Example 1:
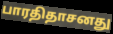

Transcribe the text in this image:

பாரதிதாசனது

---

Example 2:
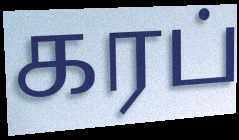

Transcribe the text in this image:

கரப்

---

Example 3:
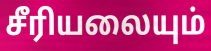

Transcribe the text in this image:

சீரியலையும்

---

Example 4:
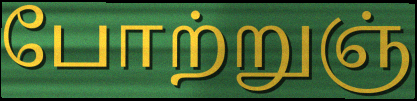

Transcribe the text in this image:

போற்றுஞ்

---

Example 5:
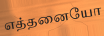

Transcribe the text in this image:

எத்தனையோ